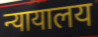
न्‍यायालय